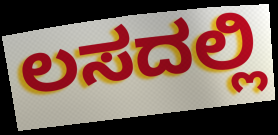
ಲಸದಲ್ಲಿ